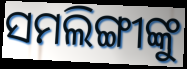
ସମଲିଙ୍ଗୀଙ୍କୁ